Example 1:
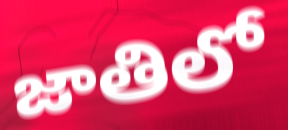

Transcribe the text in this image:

జాతిలో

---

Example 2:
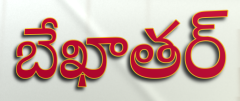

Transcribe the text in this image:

బేఖాతర్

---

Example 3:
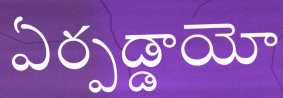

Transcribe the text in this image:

ఏర్పడ్డాయో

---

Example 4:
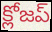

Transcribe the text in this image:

క్లోజప్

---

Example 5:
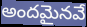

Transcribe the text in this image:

అందమైనవే